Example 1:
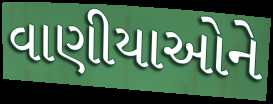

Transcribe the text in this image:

વાણીયાઓને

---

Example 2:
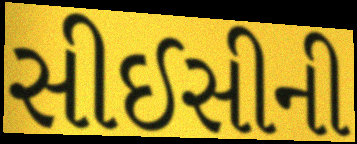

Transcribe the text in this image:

સીઈસીની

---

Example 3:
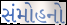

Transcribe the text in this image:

સંમોહનો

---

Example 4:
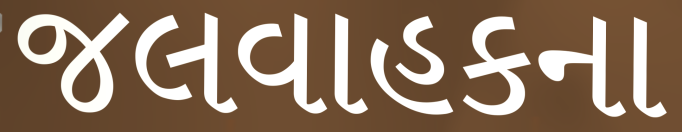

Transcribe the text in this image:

જલવાહકના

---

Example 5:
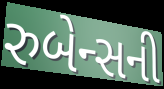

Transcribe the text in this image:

રુબેન્સની